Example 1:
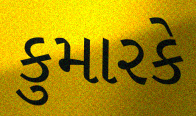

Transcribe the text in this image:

કુમારકે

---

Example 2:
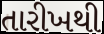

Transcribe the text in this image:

તારીખથી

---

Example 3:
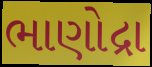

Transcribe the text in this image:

ભાણોદ્રા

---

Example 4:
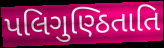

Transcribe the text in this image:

પલિગુણ્ઠિતાતિ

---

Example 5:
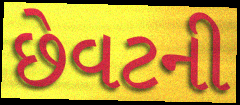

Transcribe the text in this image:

છેવટની